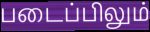
படைப்பிலும்